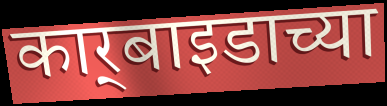
कार्बाइडाच्या